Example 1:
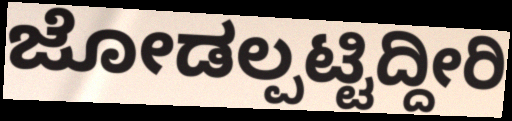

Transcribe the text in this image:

ಜೋಡಲ್ಪಟ್ಟಿದ್ದೀರಿ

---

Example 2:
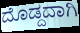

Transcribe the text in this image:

ದೊಡ್ದದಾಗಿ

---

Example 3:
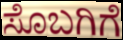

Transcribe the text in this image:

ಸೊಬಗಿಗೆ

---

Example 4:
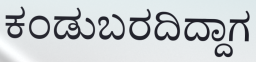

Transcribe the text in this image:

ಕಂಡುಬರದಿದ್ದಾಗ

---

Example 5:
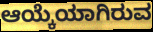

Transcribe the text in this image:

ಆಯ್ಕೆಯಾಗಿರುವ